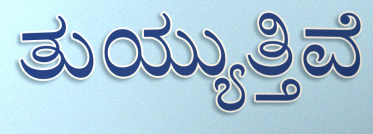
ತುಯ್ಯುತ್ತಿವೆ